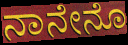
ನಾನೇನೊ